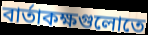
বার্তাকক্ষগুলোতে